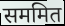
सममित